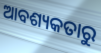
ଆବଶ୍ୟକତାରୁ